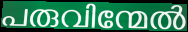
പരുവിന്മേൽ